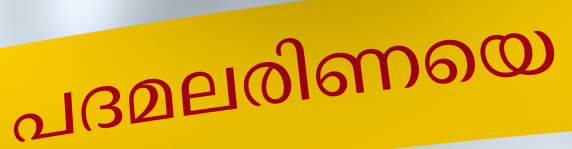
പദമലരിണയെ